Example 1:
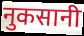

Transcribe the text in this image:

नुकसानी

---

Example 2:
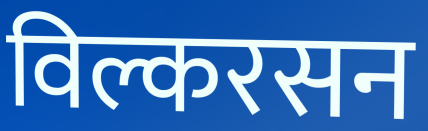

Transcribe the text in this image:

विल्करसन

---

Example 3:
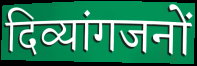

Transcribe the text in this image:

दिव्यांगजनों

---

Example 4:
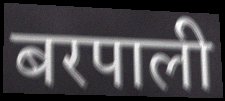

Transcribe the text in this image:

बरपाली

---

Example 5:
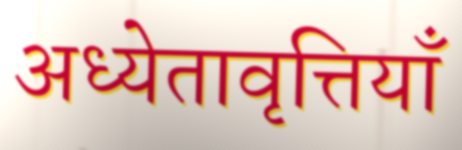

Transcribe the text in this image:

अध्येतावृत्तियाँ